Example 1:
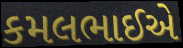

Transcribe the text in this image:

કમલભાઈએ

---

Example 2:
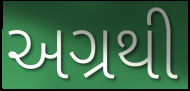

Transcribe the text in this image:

અગ્રથી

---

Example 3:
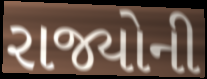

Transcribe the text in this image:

રાજ્યોની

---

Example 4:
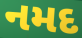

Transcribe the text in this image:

નમદ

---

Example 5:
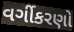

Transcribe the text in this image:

વર્ગીકરણો